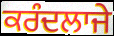
ਕਰੰਦਲਾਜੇ